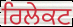
ਰਿਲੇਕਟ